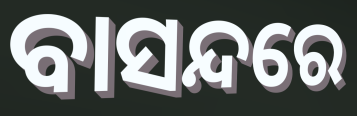
ବାସନ୍ଦରେ